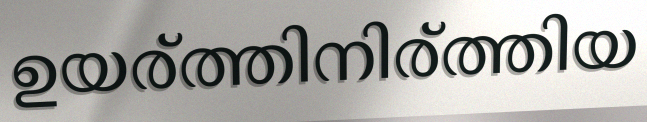
ഉയര്ത്തിനിര്ത്തിയ